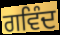
ਗਵਿੰਦ